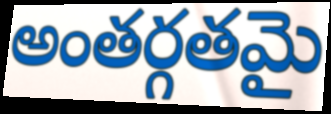
అంతర్గతమై